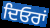
ਦਿਓਰਾਂ